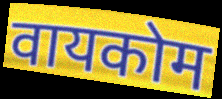
वायकोम